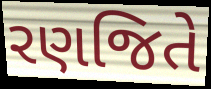
રણજિતે